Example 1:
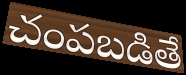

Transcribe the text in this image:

చంపబడితే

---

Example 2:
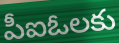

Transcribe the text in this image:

పీఐఓలకు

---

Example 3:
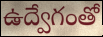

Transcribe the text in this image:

ఉద్వేగంతో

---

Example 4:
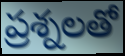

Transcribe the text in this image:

ప్రశ్నలతో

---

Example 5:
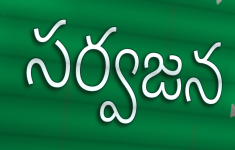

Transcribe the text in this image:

సర్వజన